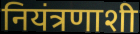
नियंत्रणाशी